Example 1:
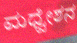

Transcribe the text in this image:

ಮಧ್ವೇಶನ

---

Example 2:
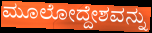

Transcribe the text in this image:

ಮೂಲೋದ್ದೇಶವನ್ನು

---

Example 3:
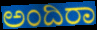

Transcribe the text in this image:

ಅಂದಿರಾ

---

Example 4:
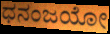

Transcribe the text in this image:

ಧನಂಜಯೋ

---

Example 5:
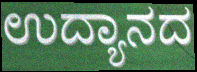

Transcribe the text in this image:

ಉದ್ಯಾನದ